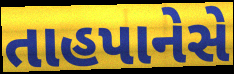
તાહપાનેસે